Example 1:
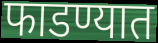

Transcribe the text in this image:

फाडण्यात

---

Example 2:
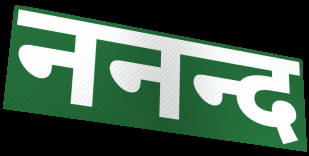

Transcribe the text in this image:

ननन्द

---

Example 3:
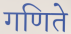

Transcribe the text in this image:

गणिते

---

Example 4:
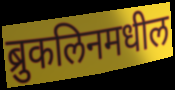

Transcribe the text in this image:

ब्रुकलिनमधील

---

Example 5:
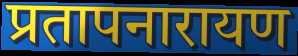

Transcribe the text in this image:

प्रतापनारायण